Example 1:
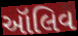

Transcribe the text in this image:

ઑલિવ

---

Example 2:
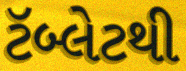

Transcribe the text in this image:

ટૅબ્લેટથી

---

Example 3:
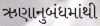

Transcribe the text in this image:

ઋણાનુબંધમાંથી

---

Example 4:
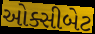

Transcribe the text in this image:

ઓક્સીબેટ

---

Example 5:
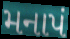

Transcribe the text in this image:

મનાપં